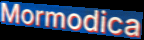
Mormodica